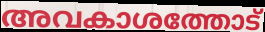
അവകാശത്തോട്